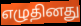
எழுதினது